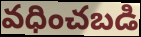
వధించబడి